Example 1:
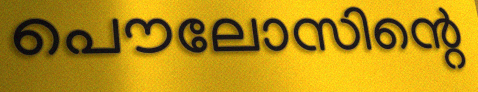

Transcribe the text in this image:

പൌലോസിന്റെ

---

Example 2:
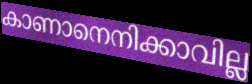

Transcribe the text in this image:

കാണാനെനിക്കാവില്ല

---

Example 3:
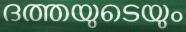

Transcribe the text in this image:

ദത്തയുടെയും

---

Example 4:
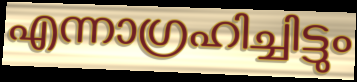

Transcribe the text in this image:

എന്നാഗ്രഹിച്ചിട്ടും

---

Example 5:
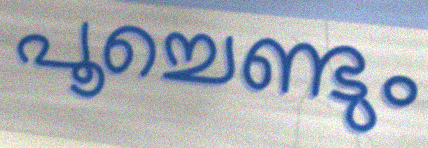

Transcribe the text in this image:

പൂച്ചെണ്ടും